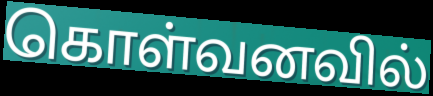
கொள்வனவில்